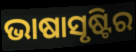
ଭାଷାସୃଷ୍ଟିର